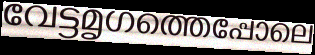
വേട്ടമൃഗത്തെപ്പോലെ